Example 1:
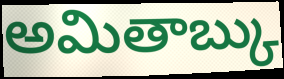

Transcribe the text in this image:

అమితాబ్కు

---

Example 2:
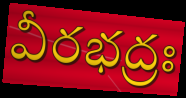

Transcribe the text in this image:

వీరభద్రః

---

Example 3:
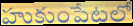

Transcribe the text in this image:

హుకుంపేటలో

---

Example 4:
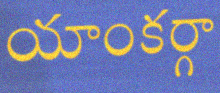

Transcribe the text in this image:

యాంకర్గా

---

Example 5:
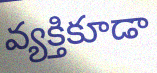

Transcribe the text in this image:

వ్యక్తికూడా